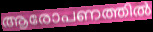
ആരോപണത്തിൽ